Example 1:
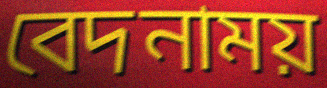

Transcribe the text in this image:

বেদনাময়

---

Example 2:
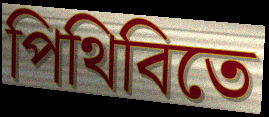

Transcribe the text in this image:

পিথিবিতে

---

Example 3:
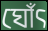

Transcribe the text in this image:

ঘোঁৎ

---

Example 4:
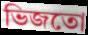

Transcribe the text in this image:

ভিজতো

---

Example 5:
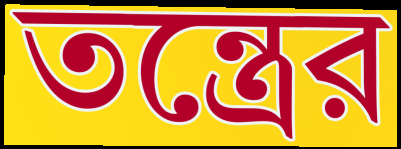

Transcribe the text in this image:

তন্ত্রের